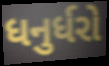
ધનુર્ધરો